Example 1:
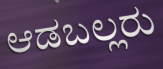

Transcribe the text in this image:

ಆಡಬಲ್ಲರು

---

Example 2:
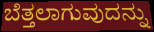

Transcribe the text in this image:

ಬೆತ್ತಲಾಗುವುದನ್ನು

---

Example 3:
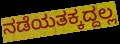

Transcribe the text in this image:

ನಡೆಯತಕ್ಕದ್ದಲ್ಲ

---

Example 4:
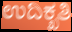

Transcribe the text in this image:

ಉದಿಕ್ಖತಿ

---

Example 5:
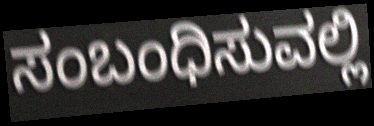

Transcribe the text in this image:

ಸಂಬಂಧಿಸುವಲ್ಲಿ